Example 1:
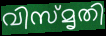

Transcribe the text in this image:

വിസ്മൃതി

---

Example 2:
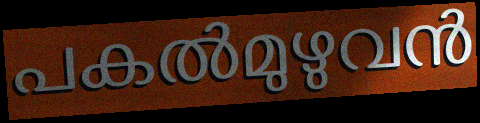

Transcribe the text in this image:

പകൽമുഴുവൻ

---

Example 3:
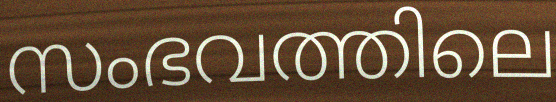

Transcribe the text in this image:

സംഭവത്തിലെ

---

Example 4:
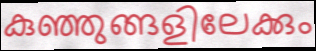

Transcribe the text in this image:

കുഞ്ഞുങ്ങളിലേക്കും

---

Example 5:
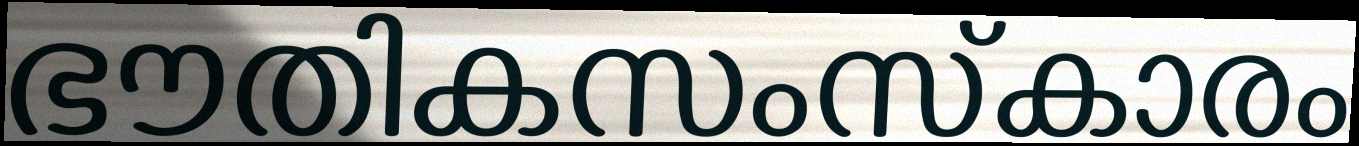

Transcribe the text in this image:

ഭൗതികസംസ്‌കാരം